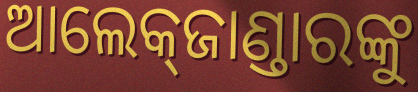
ଆଲେକ୍‌ଜାଣ୍ଡାରଙ୍କୁ